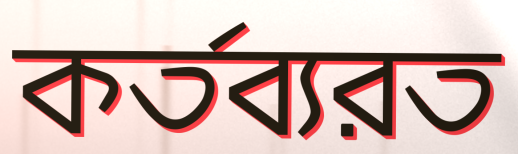
কর্তব্যরত